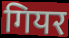
गियर